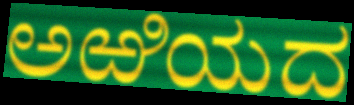
ಅಱಿಯದ